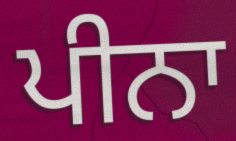
ਪੀਨਾ